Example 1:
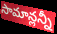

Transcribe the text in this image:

సామాన్లన్నీ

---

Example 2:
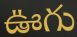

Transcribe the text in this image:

ఊగు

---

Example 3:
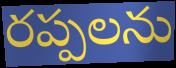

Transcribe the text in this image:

రప్పలను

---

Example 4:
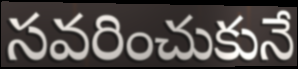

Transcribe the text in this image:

సవరించుకునే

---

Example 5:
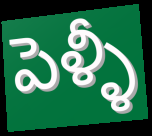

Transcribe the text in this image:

పెళ్ళీ